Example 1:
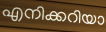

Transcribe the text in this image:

എനിക്കറിയാ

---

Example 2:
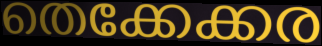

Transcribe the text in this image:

തെക്കേക്കര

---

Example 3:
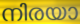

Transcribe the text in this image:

നിരയാ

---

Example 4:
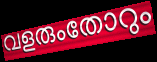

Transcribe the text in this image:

വളരുംതോറും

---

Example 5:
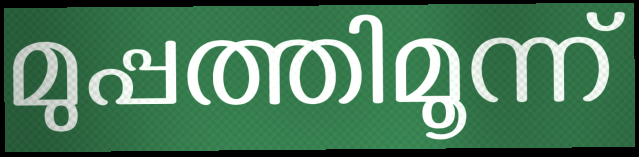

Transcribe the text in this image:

മുപ്പത്തിമൂന്ന്